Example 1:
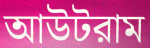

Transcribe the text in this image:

আউটরাম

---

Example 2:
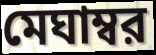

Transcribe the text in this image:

মেঘাম্বর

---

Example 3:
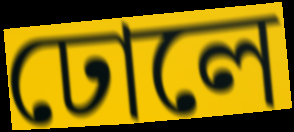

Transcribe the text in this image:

ঢোলে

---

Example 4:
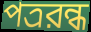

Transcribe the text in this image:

পত্ররন্ধ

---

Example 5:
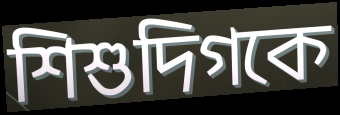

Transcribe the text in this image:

শিশুদিগকে